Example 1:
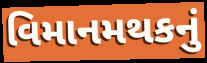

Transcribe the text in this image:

વિમાનમથકનું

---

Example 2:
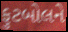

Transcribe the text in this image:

ફુટબોલને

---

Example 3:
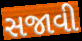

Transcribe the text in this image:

સજાવી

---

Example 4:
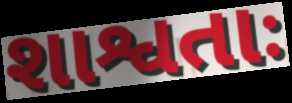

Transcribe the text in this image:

શાશ્વતાઃ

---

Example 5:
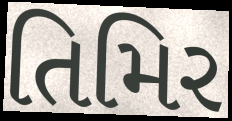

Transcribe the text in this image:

તિમિર